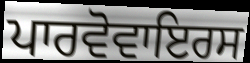
ਪਾਰਵੋਵਾਇਰਸ